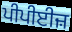
ਪੀਪੀਈਜ਼